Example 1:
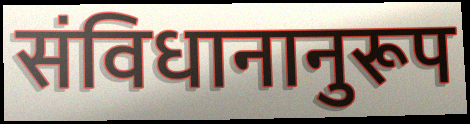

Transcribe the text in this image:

संविधानानुरूप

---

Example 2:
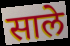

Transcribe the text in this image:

साले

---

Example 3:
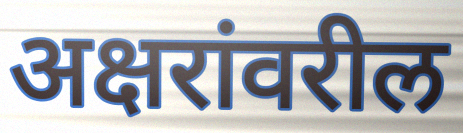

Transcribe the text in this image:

अक्षरांवरील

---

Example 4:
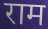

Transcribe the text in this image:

राम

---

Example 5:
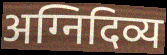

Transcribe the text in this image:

अग्निदिव्य